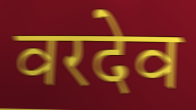
वरदेव